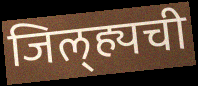
जिल्ह्यची